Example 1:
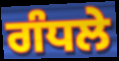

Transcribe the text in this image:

ਗੰਧਲੇ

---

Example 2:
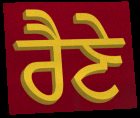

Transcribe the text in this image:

ਰੈਣੇ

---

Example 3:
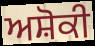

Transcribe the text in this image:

ਅਸ਼ੋਕੀ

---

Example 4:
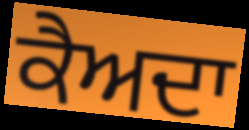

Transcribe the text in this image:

ਕੈਅਦਾ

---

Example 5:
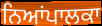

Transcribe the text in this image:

ਨਿਆਂਪਾਲਕਾ